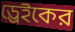
ড্রেইকের